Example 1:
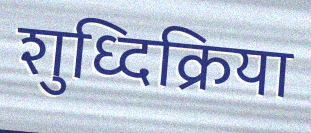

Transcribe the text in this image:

शुध्दिक्रिया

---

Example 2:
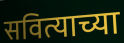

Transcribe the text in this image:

सवित्याच्या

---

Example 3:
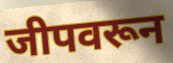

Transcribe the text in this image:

जीपवरून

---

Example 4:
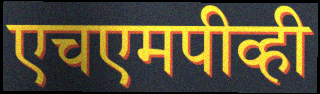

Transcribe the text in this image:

एचएमपीव्ही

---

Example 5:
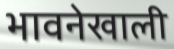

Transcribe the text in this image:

भावनेखाली